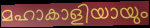
മഹാകാളിയായും